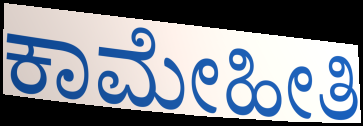
ಕಾಮೇಹೀತಿ